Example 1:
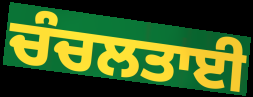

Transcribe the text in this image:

ਚੰਚਲਤਾਈ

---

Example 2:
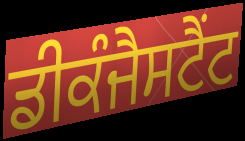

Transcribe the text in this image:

ਡੀਕੰਜੈਸਟੈਂਟ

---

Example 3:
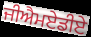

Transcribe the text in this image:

ਜੀਐਮਏਡੀਏ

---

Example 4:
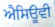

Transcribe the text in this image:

ਐਸਿਊਵੀ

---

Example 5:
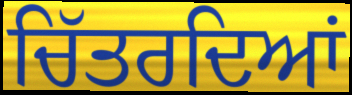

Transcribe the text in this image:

ਚਿੱਤਰਦਿਆਂ